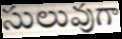
సులువుగా